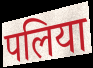
पलिया